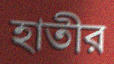
হাতীর